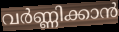
വർണ്ണിക്കാൻ